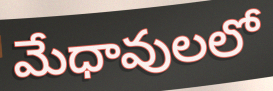
మేధావులలో